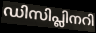
ഡിസിപ്ലിനറി